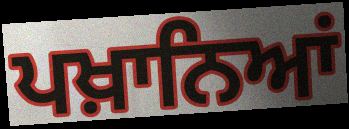
ਪਖ਼ਾਨਿਆਂ